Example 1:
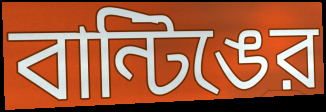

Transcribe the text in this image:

বান্টিঙের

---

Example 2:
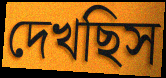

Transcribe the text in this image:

দেখছিস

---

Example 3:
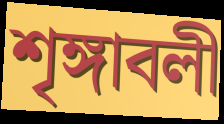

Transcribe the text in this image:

শৃঙ্গাবলী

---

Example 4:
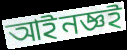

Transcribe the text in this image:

আইনজ্ঞই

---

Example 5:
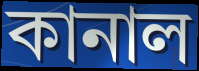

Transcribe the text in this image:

কানাল